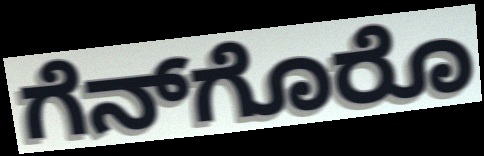
ಗೆನ್‌ಗೊರೊ